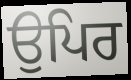
ਉਪਿਰ